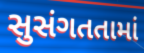
સુસંગતતામાં